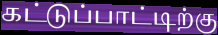
கட்டுப்பாட்டிற்கு